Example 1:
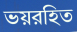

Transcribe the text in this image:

ভয়রহিত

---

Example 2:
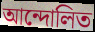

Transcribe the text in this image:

আন্দোলিত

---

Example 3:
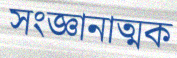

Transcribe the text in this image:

সংজ্ঞানাত্মক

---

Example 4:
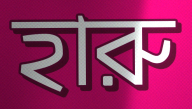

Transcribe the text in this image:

হারু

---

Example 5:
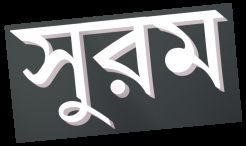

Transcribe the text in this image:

সুরম